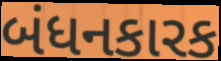
બંધનકારક